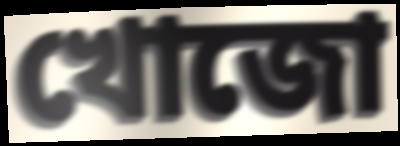
খোজো